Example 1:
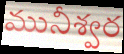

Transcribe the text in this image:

మునీశ్వర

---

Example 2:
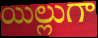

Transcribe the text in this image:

యిల్లుగా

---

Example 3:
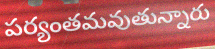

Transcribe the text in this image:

పర్యంతమవుతున్నారు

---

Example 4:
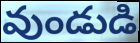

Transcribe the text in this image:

వుండుడి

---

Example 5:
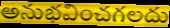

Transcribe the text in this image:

అనుభవించగలదు